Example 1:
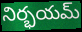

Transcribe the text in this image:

నిర్భయమ్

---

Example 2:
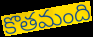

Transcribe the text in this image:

కొతమంది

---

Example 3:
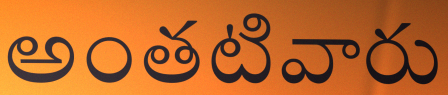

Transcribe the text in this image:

అంతటివారు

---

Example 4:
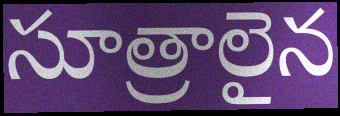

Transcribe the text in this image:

సూత్రాలైన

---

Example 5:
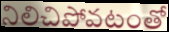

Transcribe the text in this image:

నిలిచిపోవటంతో